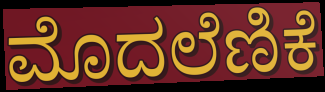
ಮೊದಲೆಣಿಕೆ